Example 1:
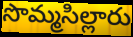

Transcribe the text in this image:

సొమ్మసిల్లారు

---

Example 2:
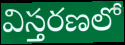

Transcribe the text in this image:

విస్తరణలో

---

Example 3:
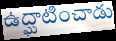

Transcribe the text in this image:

ఉద్ఘాటించాడు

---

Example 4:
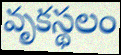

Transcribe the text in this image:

వృకస్థలం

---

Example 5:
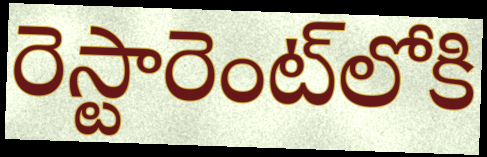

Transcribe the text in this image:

రెస్టారెంట్‌లోకి